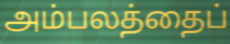
அம்பலத்தைப்